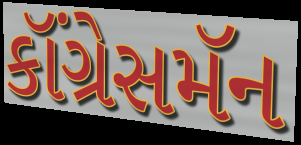
કૉંગ્રેસમૅન